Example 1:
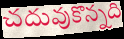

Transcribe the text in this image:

చదువుకొన్నది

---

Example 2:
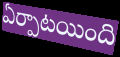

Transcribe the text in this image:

ఏర్పాటయింది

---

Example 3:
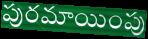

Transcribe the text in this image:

పురమాయింపు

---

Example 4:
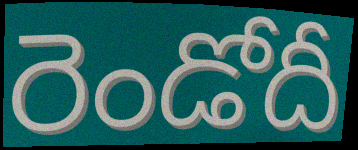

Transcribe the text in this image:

రెండోదీ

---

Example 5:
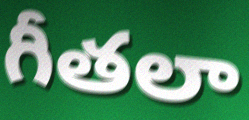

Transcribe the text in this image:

గీతలా